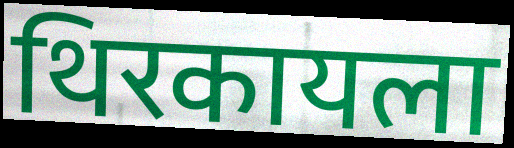
थिरकायला